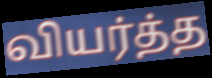
வியர்த்த